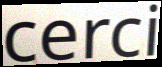
cerci